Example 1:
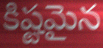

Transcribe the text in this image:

కిష్టమైన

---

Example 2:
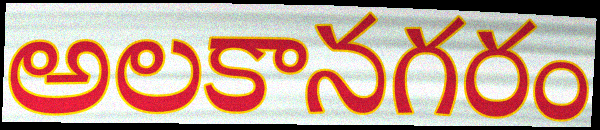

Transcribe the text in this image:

అలకానగరం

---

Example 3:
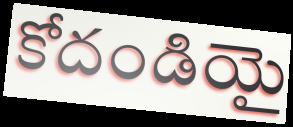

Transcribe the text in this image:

కోదండియై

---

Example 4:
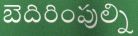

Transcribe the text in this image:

బెదిరింపుల్ని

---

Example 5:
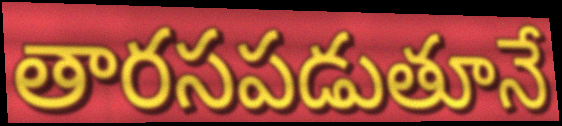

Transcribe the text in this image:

తారసపడుతూనే